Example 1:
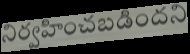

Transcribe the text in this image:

నిర్వహించబడిందని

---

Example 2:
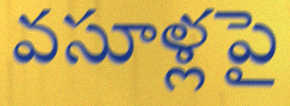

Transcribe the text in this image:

వసూళ్లపై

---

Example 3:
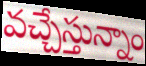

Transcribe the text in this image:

వచ్చేస్తున్నాం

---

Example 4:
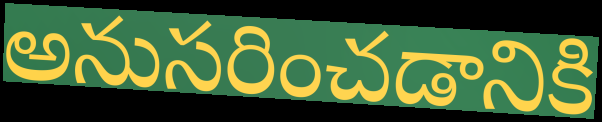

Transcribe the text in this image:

అనుసరించడానికి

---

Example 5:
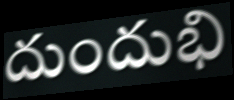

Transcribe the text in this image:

దుందుభి